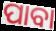
ପାବା